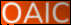
OAIC